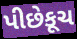
પીછેકૂચ